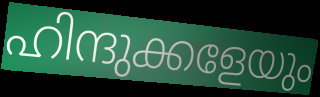
ഹിന്ദുക്കളേയും